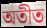
অতীত